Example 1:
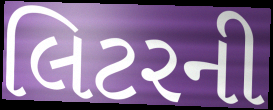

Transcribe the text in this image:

લિટરની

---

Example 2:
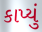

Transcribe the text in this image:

કાપ્યું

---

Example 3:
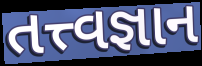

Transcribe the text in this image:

તત્ત્વજ્ઞાન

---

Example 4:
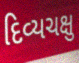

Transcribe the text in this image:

દિવ્યચક્ષુ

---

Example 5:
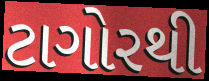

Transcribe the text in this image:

ટાગોરથી